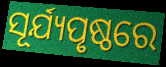
ସୂର୍ଯ୍ୟପୃଷ୍ଠରେ